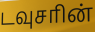
டவுசரின்